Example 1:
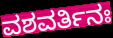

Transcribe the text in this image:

ವಶವರ್ತಿನಃ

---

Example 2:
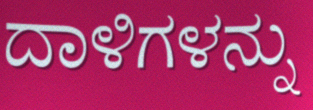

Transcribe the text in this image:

ದಾಳಿಗಳನ್ನು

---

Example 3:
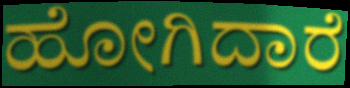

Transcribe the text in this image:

ಹೋಗಿದಾರೆ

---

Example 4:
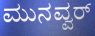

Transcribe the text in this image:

ಮುನವ್ವರ್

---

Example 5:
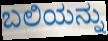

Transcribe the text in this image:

ಬಲಿಯನ್ನು